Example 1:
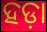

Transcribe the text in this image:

ହଡ଼ା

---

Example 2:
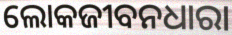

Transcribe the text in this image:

ଲୋକଜୀବନଧାରା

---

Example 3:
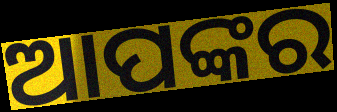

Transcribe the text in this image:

ଆପଙ୍କର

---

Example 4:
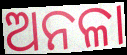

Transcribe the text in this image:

ଅନଳା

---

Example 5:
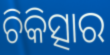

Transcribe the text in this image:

ଚିକିତ୍ସାର